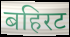
बहिरट